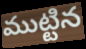
ముట్టిన